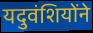
यदुवंशियोंने